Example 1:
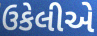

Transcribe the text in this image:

ઉકેલીએ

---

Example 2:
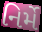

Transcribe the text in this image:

નિર્મે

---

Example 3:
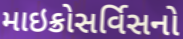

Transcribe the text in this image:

માઇક્રોસર્વિસનો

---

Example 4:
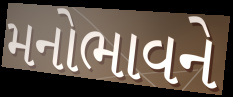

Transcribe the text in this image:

મનોભાવને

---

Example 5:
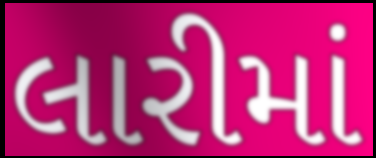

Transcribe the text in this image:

લારીમાં